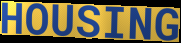
HOUSING